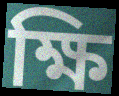
ক্ষি